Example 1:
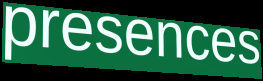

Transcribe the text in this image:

presences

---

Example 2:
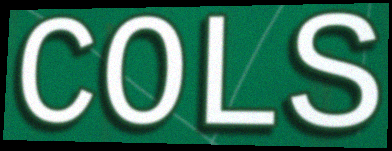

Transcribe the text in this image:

COLS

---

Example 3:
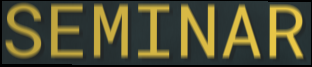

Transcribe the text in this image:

SEMINAR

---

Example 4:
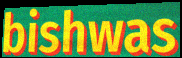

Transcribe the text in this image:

bishwas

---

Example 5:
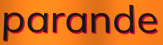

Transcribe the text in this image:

parande